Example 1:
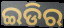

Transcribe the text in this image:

ଇଡିର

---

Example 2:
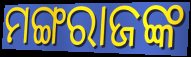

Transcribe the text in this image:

ମଙ୍ଗରାଜଙ୍କ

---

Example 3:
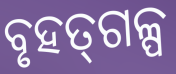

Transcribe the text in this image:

ବୃହତ୍‌ଗଳ୍ପ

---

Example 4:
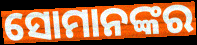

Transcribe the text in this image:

ସୋମାନଙ୍କର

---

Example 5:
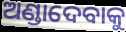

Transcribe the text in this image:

ଅଣ୍ଡାଦେବାକୁ